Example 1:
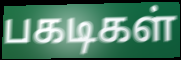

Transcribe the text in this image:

பகடிகள்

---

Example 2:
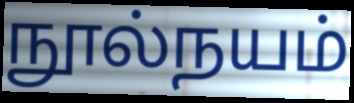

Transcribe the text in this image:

நூல்நயம்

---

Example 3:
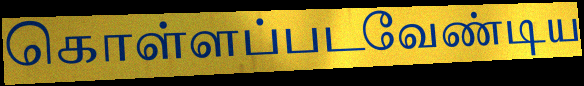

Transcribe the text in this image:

கொள்ளப்படவேண்டிய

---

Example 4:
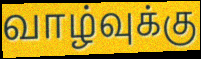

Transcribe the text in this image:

வாழ்வுக்கு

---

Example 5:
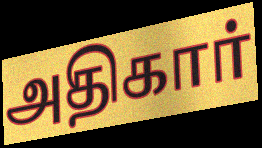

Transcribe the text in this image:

அதிகார்